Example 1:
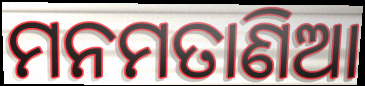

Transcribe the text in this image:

ମନମତାଣିଆ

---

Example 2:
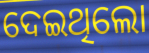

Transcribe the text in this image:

ଦେଇଥିଲୋ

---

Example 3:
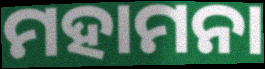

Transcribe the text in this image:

ମହାମନା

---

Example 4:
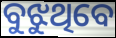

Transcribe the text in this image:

ବୁଝୁଥିବେ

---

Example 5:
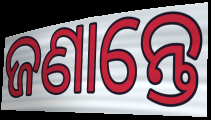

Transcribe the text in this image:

ଜଣାନ୍ତେ